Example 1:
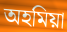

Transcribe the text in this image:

অহমিয়া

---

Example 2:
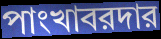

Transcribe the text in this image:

পাংখাবরদার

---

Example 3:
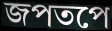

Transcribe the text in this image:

জপতপে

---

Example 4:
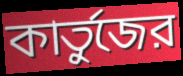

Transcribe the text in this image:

কার্তুজের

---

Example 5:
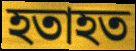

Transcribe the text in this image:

হতাহত